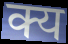
क्य